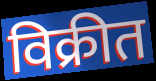
विक्रीत